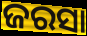
ଜରସା